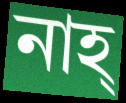
নাহ্